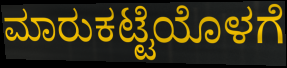
ಮಾರುಕಟ್ಟೆಯೊಳಗೆ